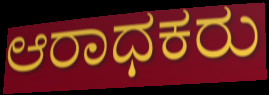
ಆರಾಧಕರು